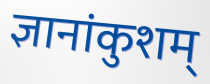
ज्ञानांकुशम्